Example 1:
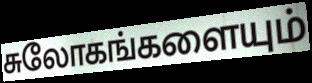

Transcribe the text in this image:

சுலோகங்களையும்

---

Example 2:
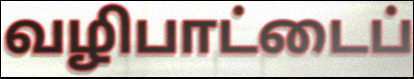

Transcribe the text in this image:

வழிபாட்டைப்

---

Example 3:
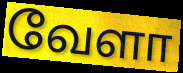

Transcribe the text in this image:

வேளா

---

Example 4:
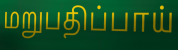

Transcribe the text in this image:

மறுபதிப்பாய்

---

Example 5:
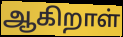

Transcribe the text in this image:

ஆகிறாள்